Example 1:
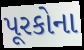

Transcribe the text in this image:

પૂરકોના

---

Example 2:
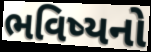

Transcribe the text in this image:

ભવિષ્યનો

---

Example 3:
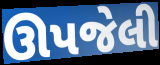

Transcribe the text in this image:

ઊપજેલી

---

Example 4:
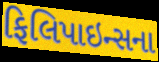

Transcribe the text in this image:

ફિલિપાઇન્સના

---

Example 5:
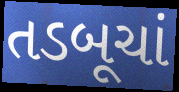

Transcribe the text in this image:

તડબૂચાં